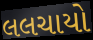
લલચાયો